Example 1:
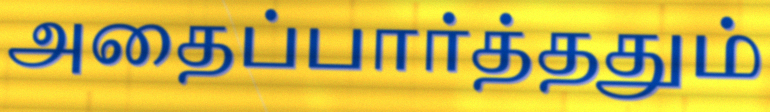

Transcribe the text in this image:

அதைப்பார்த்ததும்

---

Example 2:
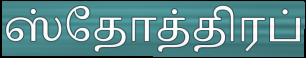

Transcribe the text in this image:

ஸ்தோத்திரப்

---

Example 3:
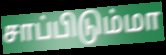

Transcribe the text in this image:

சாப்பிடும்மா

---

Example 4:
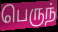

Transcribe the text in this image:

பெருந்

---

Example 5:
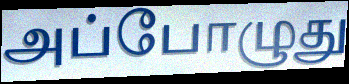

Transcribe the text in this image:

அப்போழுது